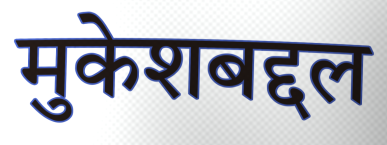
मुकेशबद्दल